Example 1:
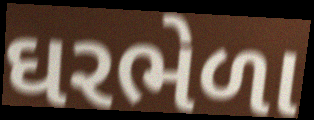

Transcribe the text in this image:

ઘરભેળા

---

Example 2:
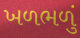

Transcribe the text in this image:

ખળભળું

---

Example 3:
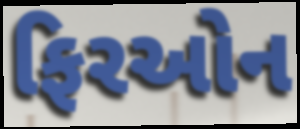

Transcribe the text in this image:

ફિરઓન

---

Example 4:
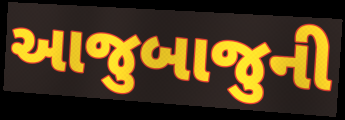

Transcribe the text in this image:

આજુબાજુની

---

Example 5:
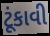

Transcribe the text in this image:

ટૂંકાવી